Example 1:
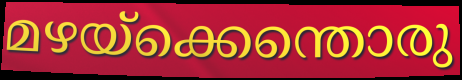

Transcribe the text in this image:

മഴയ്ക്കെന്തൊരു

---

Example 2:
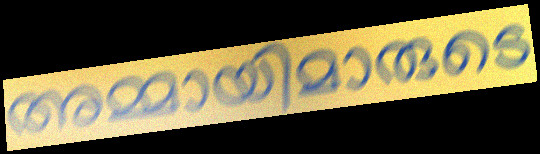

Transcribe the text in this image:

അമ്മായിമാരുടെ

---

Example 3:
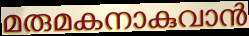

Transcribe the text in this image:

മരുമകനാകുവാൻ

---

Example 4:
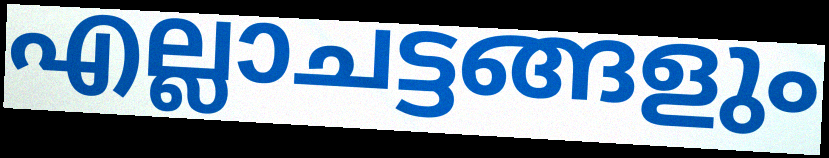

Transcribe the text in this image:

എല്ലാചട്ടങ്ങളും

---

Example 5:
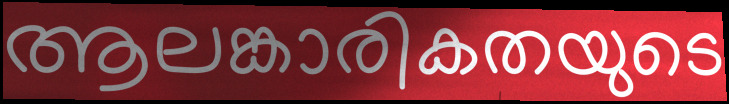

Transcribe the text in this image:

ആലങ്കാരികതയുടെ